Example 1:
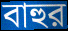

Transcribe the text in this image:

বাহুর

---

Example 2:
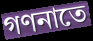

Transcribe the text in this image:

গণনাতে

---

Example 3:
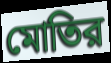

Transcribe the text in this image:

মোতির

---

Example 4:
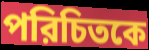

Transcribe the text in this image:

পরিচিতকে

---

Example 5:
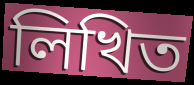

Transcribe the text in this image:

লিখিত